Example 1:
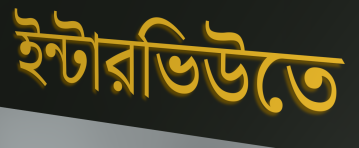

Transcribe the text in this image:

ইন্টারভিউতে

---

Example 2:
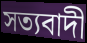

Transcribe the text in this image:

সত্যবাদী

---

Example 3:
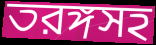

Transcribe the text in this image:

তরঙ্গসহ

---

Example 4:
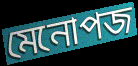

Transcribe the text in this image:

মেনোপজ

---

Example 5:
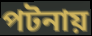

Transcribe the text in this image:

পটনায়